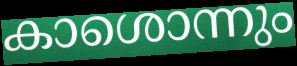
കാശൊന്നും